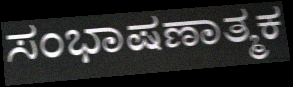
ಸಂಭಾಷಣಾತ್ಮಕ